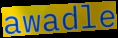
awadle